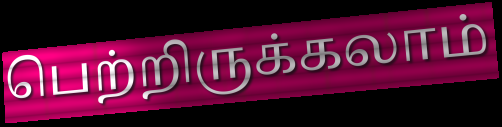
பெற்றிருக்கலாம்